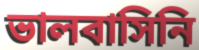
ভালবাসিনি